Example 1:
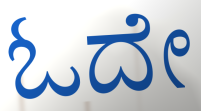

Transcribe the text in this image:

ಓದೇ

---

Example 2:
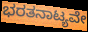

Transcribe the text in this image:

ಭರತನಾಟ್ಯವೇ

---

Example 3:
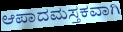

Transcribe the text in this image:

ಆಪಾದಮಸ್ತಕವಾಗಿ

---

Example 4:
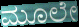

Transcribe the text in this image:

ಮೂಲೇ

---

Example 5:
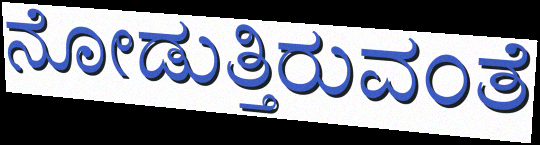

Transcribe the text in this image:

ನೋಡುತ್ತಿರುವಂತೆ